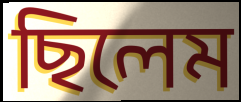
ছিলেম